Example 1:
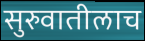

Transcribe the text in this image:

सुरुवातीलाच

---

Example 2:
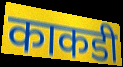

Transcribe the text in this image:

काकडी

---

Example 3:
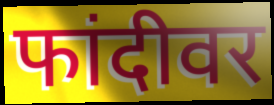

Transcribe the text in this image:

फांदीवर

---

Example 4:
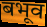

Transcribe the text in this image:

बभूव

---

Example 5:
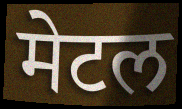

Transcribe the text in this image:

मेटल